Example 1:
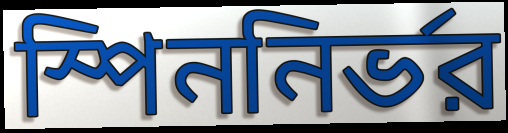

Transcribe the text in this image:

স্পিননির্ভর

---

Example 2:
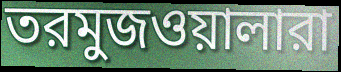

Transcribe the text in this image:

তরমুজওয়ালারা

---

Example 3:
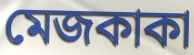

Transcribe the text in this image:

মেজকাকা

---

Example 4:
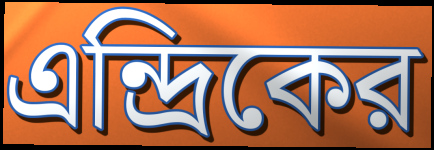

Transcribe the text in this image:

এন্দ্রিকের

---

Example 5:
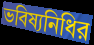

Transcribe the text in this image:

ভবিষ্যনিধির